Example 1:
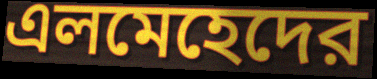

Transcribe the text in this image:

এলমেহেদের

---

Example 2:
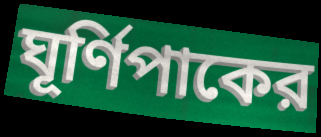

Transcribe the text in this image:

ঘূর্ণিপাকের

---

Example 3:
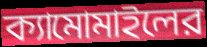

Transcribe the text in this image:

ক্যামোমাইলের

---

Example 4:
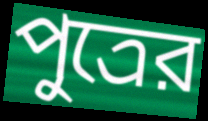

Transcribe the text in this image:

পুত্রের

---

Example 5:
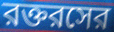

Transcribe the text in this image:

রক্তরসের